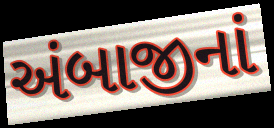
અંબાજીનાં